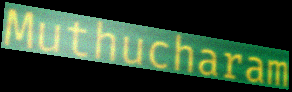
Muthucharam